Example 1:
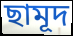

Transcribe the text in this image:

ছামূদ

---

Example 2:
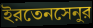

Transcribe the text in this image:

ইরতেনসেনুর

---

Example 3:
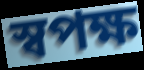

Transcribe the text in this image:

স্বপক্ষ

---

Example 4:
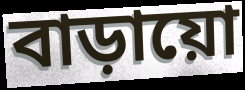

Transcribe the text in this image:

বাড়ায়ো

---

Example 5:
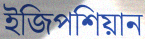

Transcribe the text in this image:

ইজিপশিয়ান